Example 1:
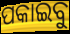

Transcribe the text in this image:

ପକାଇବୁ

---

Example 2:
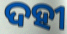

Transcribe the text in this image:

ଦହୀ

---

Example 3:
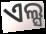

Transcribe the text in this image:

ଏଲ୍ସ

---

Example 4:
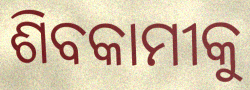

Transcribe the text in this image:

ଶିବକାମୀକୁ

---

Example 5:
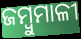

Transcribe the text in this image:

ଜମ୍ବୁମାଳୀ